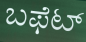
ಬಫೆಟ್